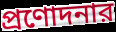
প্রণোদনার